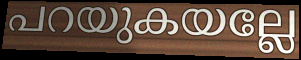
പറയുകയല്ലേ